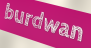
burdwan